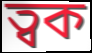
ত্বক